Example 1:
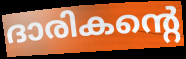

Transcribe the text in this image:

ദാരികന്റെ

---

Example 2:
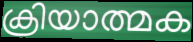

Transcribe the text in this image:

ക്രിയാത്മക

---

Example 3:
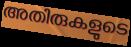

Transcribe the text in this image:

അതിരുകളുടെ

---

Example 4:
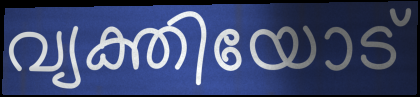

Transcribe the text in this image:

വ്യക്തിയോട്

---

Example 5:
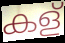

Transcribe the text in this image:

കള്